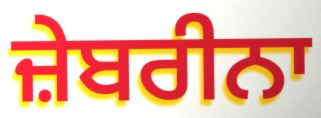
ਜ਼ੇਬਰੀਨਾ